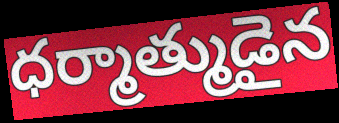
ధర్మాత్ముడైన